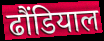
ढौंडियाल